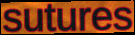
sutures